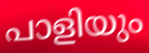
പാളിയും